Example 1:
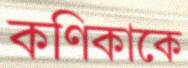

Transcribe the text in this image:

কণিকাকে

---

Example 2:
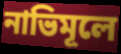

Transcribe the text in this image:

নাভিমূলে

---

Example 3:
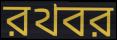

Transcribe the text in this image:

রথবর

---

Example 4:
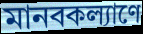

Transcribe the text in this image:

মানবকল্যাণে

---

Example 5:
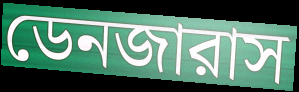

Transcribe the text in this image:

ডেনজারাস